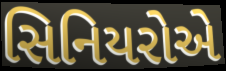
સિનિયરોએ